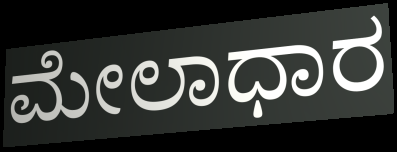
ಮೇಲಾಧಾರ